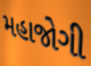
મહાજોગી